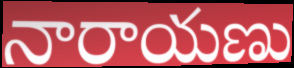
నారాయణు